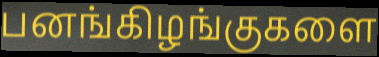
பனங்கிழங்குகளை